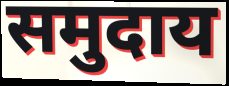
समुदाय